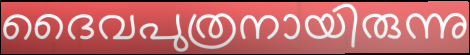
ദൈവപുത്രനായിരുന്നു